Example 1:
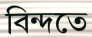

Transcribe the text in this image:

বিন্দতে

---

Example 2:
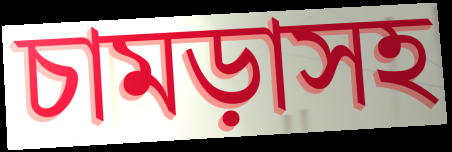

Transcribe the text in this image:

চামড়াসহ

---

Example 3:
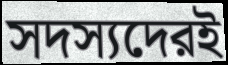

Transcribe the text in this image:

সদস্যদেরই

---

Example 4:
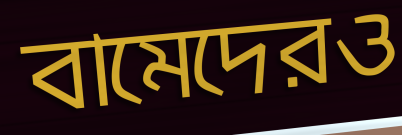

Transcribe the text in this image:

বামেদেরও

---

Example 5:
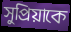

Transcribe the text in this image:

সুপ্রিয়াকে